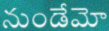
నుండేమో